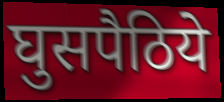
घुसपैठिये